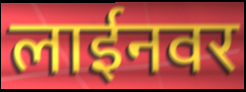
लाईनवर